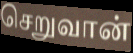
செறுவான்